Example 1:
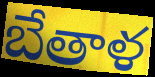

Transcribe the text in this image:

బేతాళ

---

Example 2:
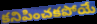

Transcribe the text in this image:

కనిపించకపోయే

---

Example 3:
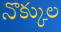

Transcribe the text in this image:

నొక్కుల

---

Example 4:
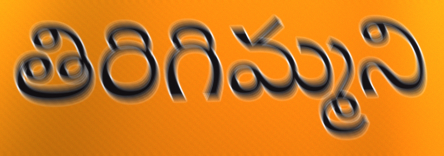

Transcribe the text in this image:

తిరిగిమ్మని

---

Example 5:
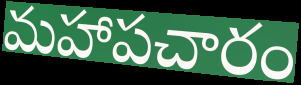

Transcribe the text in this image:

మహాపచారం